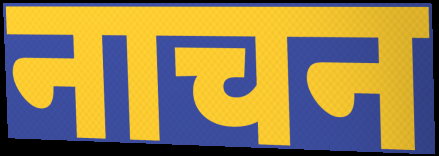
नाचन